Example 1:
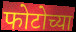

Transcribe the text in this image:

फोटोच्या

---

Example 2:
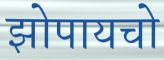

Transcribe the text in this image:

झोपायचो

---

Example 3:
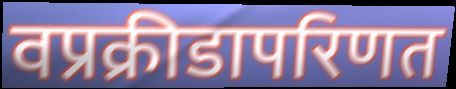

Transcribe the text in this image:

वप्रक्रीडापरिणत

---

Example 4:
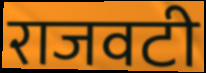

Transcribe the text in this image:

राजवटी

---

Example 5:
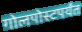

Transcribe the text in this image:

गोलपोस्टपर्यंत